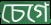
চেগে